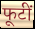
फूटीं